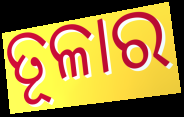
ତୂଳାର